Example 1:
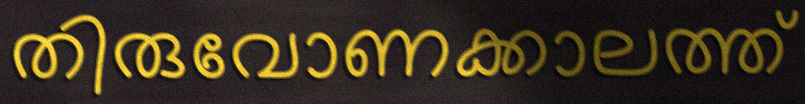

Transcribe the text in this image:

തിരുവോണക്കാലത്ത്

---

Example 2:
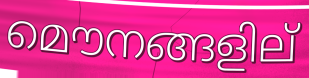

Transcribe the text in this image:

മൌനങ്ങളില്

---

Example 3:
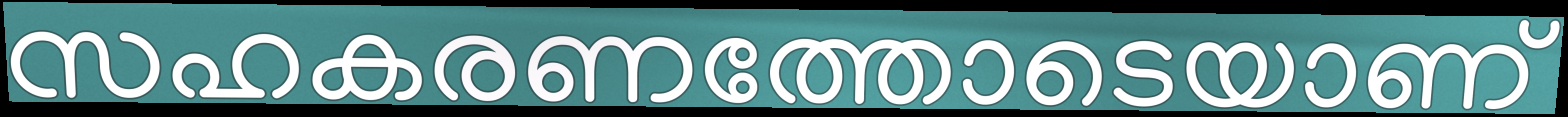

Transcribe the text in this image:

സഹകരണത്തോടെയാണ്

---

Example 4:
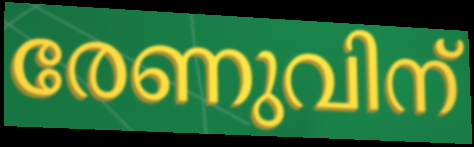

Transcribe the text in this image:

രേണുവിന്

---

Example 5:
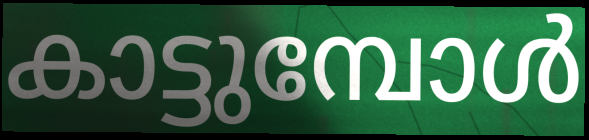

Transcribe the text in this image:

കാട്ടുമ്പോൾ